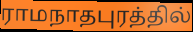
ராமநாதபுரத்தில்